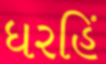
ધરહિં